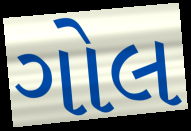
ગોલ